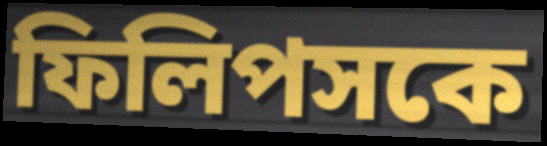
ফিলিপসকে